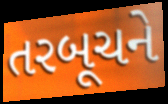
તરબૂચને